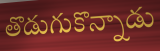
తొడుగుకొన్నాడు